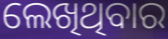
ଲେଖିଥିବାର